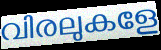
വിരലുകളേ